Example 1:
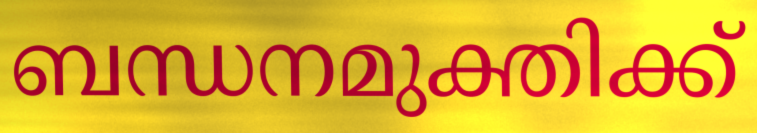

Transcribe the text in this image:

ബന്ധനമുക്തിക്ക്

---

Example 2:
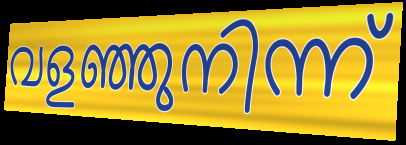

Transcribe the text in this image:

വളഞ്ഞുനിന്ന്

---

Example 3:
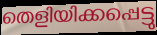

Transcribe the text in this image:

തെളിയിക്കപ്പെട്ടു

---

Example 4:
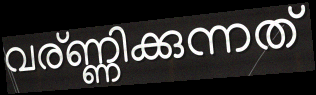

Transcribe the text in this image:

വര്ണ്ണിക്കുന്നത്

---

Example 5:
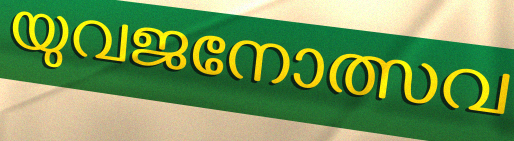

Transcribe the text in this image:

യുവജനോത്സവ